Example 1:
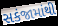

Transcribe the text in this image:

સકંજામાંથી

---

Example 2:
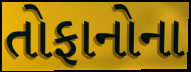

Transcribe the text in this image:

તોફાનોના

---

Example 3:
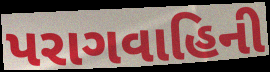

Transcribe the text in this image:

પરાગવાહિની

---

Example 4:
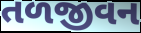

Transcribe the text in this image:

તળજીવન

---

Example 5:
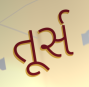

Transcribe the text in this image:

તૂર્સ